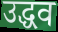
उद्धव